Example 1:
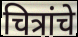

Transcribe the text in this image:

चित्रांचे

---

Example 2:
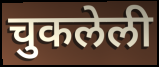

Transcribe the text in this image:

चुकलेली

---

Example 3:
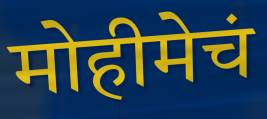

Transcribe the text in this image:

मोहीमेचं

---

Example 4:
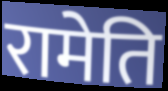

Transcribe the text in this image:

रामेति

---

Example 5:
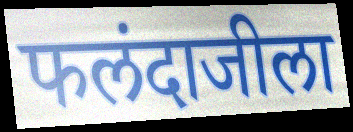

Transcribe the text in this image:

फलंदाजीला